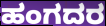
ಹಂಗದರ